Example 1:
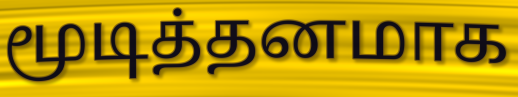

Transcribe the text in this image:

மூடித்தனமாக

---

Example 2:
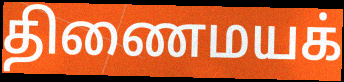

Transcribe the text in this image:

திணைமயக்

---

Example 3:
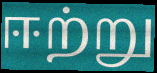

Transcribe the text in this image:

ஈற்று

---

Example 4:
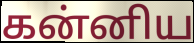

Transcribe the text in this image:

கன்னிய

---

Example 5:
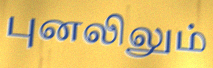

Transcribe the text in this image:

புனலிலும்